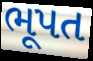
ભૂપત